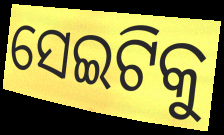
ସେଇଟିକୁ